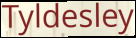
Tyldesley